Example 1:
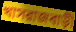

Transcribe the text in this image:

খাসরাজবাড়ী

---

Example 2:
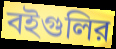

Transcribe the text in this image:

বইগুলির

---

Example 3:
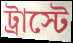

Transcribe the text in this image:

ট্রাস্টে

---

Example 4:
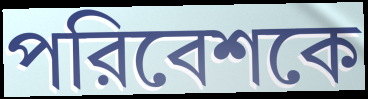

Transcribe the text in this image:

পরিবেশকে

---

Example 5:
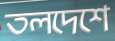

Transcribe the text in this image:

তলদেশে